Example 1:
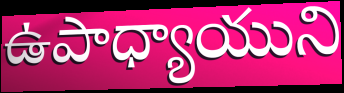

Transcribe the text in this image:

ఉపాధ్యాయుని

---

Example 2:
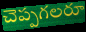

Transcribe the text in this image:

చెప్పగలరూ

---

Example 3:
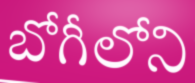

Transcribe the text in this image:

బోగీలోని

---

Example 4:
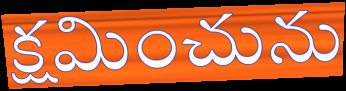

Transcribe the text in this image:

క్షమించును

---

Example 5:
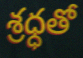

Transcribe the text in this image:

శ్రధ్ధతో